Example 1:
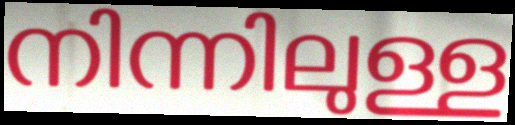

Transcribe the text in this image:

നിന്നിലുള്ള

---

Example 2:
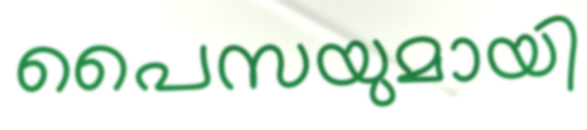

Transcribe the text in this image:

പൈസയുമായി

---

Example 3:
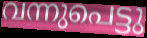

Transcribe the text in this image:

വന്നുപെട്ടു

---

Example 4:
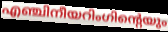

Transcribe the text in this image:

എഞ്ചിനീയറിംഗിന്റെയും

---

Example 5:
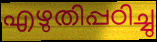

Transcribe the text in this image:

എഴുതിപ്പഠിച്ചു